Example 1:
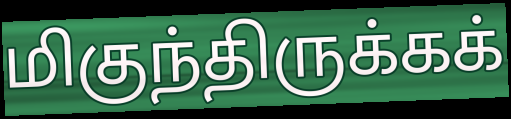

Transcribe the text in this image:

மிகுந்திருக்கக்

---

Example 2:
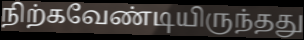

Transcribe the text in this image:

நிற்கவேண்டியிருந்தது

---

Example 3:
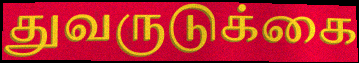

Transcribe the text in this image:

துவருடுக்கை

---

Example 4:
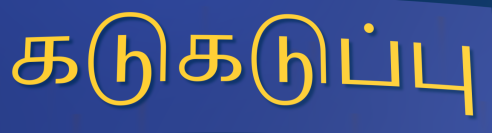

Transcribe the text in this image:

கடுகடுப்பு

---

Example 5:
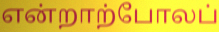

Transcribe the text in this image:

என்றாற்போலப்